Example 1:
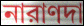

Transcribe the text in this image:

নারাণদা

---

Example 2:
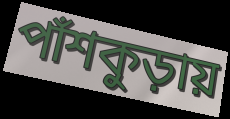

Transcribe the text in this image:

পাঁশকুড়ায়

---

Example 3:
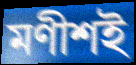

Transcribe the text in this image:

মণীশই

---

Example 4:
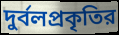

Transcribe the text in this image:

দুর্বলপ্রকৃতির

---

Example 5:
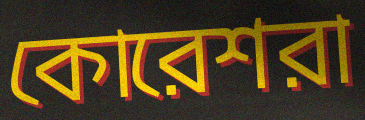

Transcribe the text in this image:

কোরেশরা